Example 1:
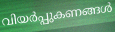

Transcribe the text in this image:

വിയർപ്പുകണങ്ങൾ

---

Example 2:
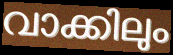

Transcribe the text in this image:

വാക്കിലും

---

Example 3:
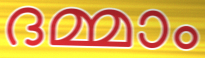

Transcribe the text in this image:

ദമ്മാം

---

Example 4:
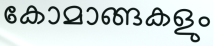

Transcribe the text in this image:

കോമാങ്ങകളും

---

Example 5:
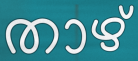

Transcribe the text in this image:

താഴ്